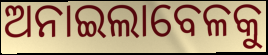
ଅନାଇଲାବେଳକୁ